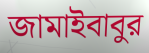
জামাইবাবুর